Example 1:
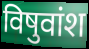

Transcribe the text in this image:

विषुवांश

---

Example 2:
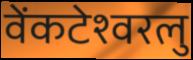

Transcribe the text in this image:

वेंकटेश्वरलु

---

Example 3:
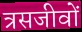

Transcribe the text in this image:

त्रसजीवों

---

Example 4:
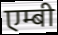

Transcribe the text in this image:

एम्बी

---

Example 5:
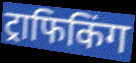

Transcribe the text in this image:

ट्राफिकिंग